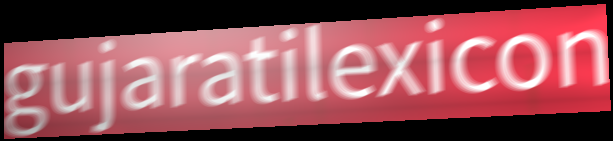
gujaratilexicon